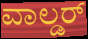
ವಾಲ್ಡರ್